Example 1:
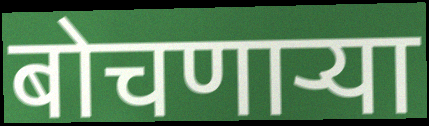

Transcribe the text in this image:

बोचणाऱ्या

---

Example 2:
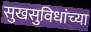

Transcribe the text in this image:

सुखसुविधांच्या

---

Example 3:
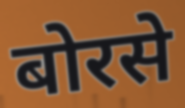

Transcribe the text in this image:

बोरसे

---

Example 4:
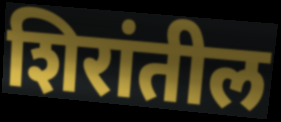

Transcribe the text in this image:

शिरांतील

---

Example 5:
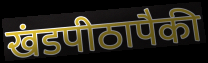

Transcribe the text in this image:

खंडपीठापैकी